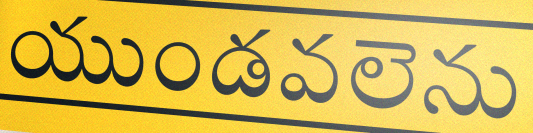
యుండవలెను